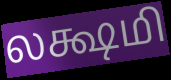
லக்ஷமி